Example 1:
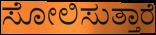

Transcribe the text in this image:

ಸೋಲಿಸುತ್ತಾರೆ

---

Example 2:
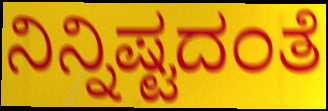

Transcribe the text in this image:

ನಿನ್ನಿಷ್ಟದಂತೆ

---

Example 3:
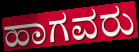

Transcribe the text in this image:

ಹಾಗವರು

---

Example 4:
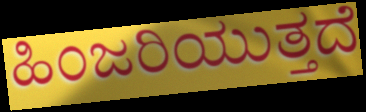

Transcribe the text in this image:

ಹಿಂಜರಿಯುತ್ತದೆ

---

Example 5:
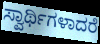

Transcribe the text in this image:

ಸ್ವಾರ್ಥಿಗಳಾದರೆ